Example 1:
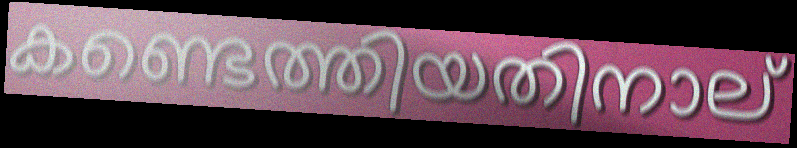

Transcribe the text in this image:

കണ്ടെത്തിയതിനാല്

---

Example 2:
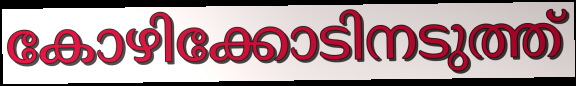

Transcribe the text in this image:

കോഴിക്കോടിനടുത്ത്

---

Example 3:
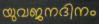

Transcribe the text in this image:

യുവജനദിനം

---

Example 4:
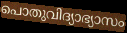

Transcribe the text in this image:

പൊതുവിദ്യാഭ്യാസം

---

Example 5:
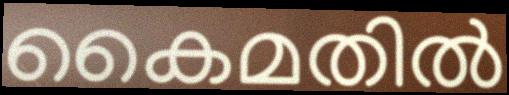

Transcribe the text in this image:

കൈമതിൽ